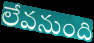
లేవనుంది